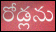
రోడ్లను